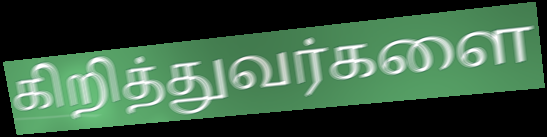
கிறித்துவர்களை